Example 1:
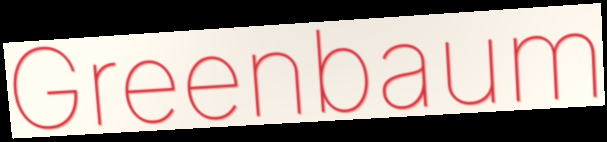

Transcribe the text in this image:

Greenbaum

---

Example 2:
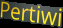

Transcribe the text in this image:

Pertiwi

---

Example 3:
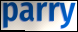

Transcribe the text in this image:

parry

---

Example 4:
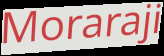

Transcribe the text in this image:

Moraraji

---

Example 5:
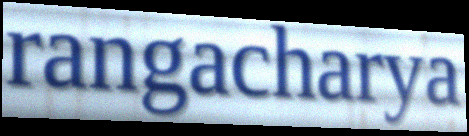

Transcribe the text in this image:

rangacharya